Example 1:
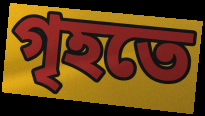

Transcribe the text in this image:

গৃহতে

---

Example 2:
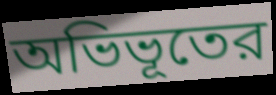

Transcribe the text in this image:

অভিভূতের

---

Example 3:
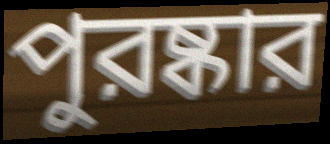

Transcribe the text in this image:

পুরষ্কার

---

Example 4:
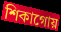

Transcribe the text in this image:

শিকাগোয়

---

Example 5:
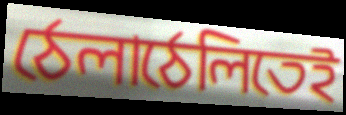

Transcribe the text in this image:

ঠেলাঠেলিতেই